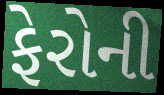
ફેરોની